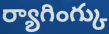
ర్యాగింగ్కు